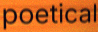
poetical